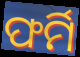
ଫର୍ମି